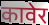
कावेर